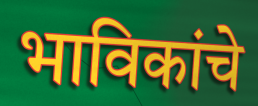
भाविकांचे